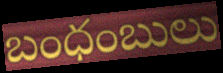
బంధంబులు